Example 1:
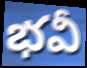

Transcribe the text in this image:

భవీ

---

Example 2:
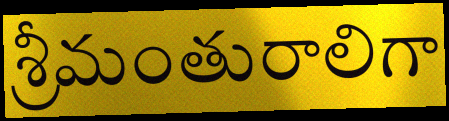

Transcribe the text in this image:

శ్రీమంతురాలిగా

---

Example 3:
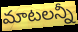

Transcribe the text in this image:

మాటలన్నీ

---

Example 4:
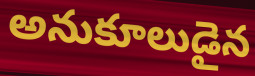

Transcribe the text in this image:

అనుకూలుడైన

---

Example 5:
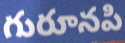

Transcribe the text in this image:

గురూనపి